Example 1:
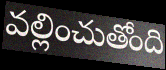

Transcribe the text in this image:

వల్లించుతోంది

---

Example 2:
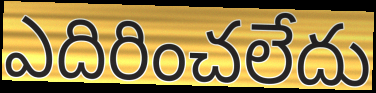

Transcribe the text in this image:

ఎదిరించలేదు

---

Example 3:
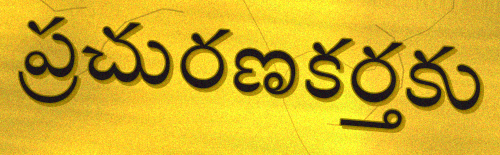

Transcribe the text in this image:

ప్రచురణకర్తకు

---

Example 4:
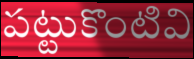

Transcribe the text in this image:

పట్టుకొంటివి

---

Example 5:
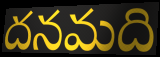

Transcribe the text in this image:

దనమది